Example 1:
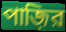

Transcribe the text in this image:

পাজ়ির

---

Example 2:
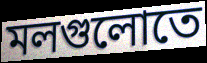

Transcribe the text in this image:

মলগুলোতে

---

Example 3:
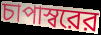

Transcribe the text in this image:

চাপাস্বরের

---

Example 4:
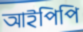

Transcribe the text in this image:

আইপিপি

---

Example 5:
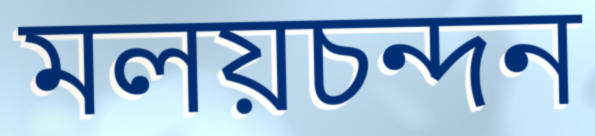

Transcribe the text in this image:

মলয়চন্দন